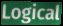
Logical